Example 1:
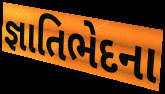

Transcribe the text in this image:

જ્ઞાતિભેદના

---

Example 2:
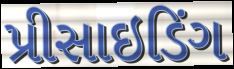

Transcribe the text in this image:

પ્રીસાઇડિંગ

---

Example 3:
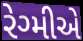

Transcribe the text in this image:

રેગ્મીએ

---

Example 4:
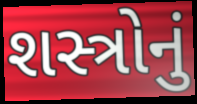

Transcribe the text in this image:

શસ્ત્રોનું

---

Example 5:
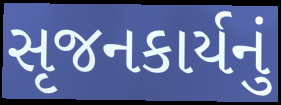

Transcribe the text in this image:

સૃજનકાર્યનું